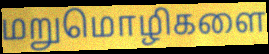
மறுமொழிகளை